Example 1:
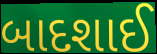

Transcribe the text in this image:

બાદશાઈ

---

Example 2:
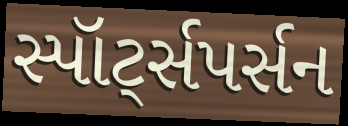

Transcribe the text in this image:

સ્પૉર્ટ્સપર્સન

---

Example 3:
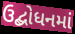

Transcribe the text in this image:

ઉદ્બોધનમાં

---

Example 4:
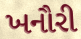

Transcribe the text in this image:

ખનૌરી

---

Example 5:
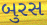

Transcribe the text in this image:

બુરસ